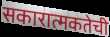
सकारात्मकतेची